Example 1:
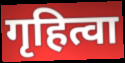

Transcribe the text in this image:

गृहित्वा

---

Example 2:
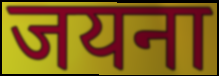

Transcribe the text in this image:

जयना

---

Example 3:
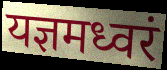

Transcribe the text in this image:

यज्ञमध्वरं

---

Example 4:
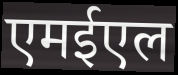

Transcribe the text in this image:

एमईएल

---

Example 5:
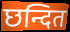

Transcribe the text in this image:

छन्दित